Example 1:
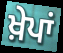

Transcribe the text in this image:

ਖ਼ੇਪਾਂ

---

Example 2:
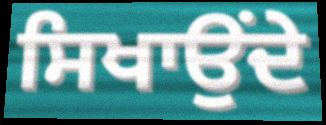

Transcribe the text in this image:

ਸਿਖਾਉਂਦੇ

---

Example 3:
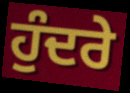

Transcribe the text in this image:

ਹੁੰਦਰੇ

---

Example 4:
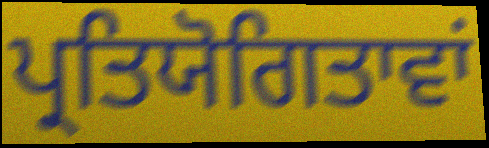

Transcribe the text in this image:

ਪ੍ਰਤਿਯੋਗਿਤਾਵਾਂ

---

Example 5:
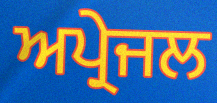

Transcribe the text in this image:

ਅਪ੍ਰੇਜਲ